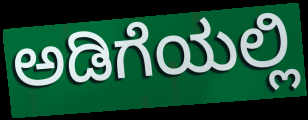
ಅಡಿಗೆಯಲ್ಲಿ